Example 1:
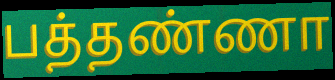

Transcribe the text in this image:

பத்தண்ணா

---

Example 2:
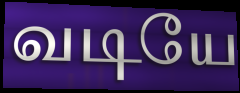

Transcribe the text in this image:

வடியே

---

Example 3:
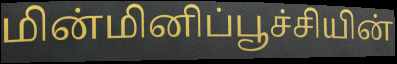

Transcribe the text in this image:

மின்மினிப்பூச்சியின்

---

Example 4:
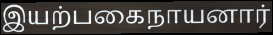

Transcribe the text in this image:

இயற்பகைநாயனார்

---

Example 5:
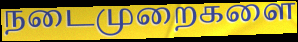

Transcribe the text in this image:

நடைமுறைகளை